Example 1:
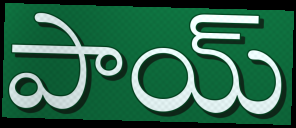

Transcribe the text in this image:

పాయ్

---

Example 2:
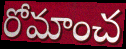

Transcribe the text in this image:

రోమాంచ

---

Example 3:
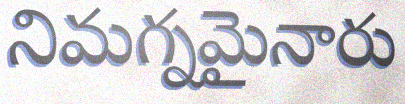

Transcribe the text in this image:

నిమగ్నమైనారు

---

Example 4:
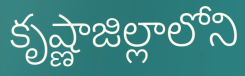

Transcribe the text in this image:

కృష్ణాజిల్లాలోని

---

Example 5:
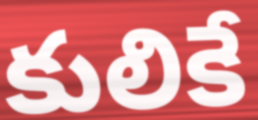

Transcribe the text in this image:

కులికే